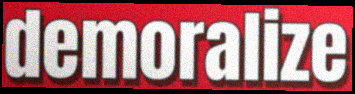
demoralize